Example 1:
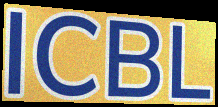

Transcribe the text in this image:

ICBL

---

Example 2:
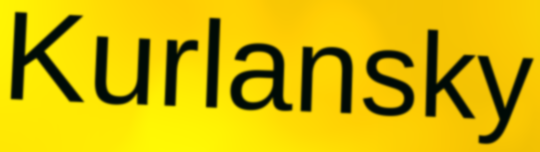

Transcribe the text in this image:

Kurlansky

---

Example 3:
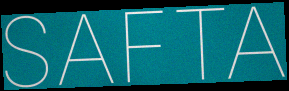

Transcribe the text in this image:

SAFTA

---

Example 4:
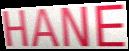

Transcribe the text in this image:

HANE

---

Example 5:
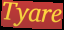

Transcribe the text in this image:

Tyare